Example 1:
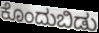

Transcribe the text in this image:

ಕೊಂದುಬಿಡು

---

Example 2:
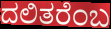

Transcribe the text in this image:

ದಲಿತರೆಂಬ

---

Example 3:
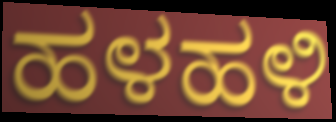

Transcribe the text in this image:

ಹಳಹಳಿ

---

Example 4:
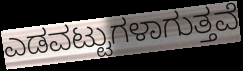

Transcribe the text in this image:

ಎಡವಟ್ಟುಗಳಾಗುತ್ತವೆ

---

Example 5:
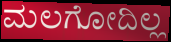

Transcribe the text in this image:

ಮಲಗೋದಿಲ್ಲ